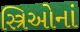
સ્ત્રિઓનાં